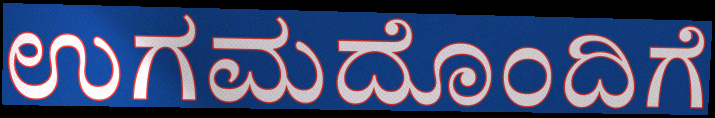
ಉಗಮದೊಂದಿಗೆ